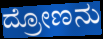
ದ್ರೋಣನು